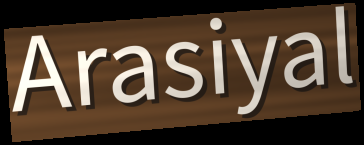
Arasiyal